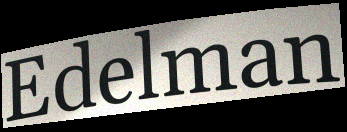
Edelman